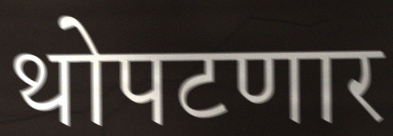
थोपटणार